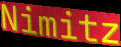
Nimitz